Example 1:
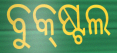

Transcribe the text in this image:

ବୁକ୍‌ଷ୍ଟଲ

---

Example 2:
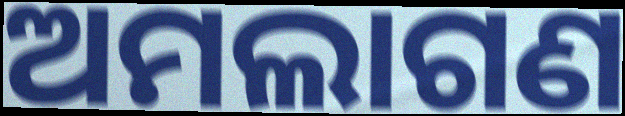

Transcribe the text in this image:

ଅମଲାଗଣ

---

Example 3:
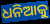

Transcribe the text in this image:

ଧନିଆକୁ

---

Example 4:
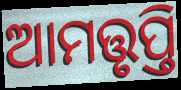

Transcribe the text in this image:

ଆମତ୍ତୃପ୍ତି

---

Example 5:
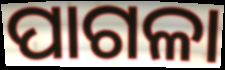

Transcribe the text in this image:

ପାଗଳା